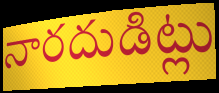
నారదుడిట్లు